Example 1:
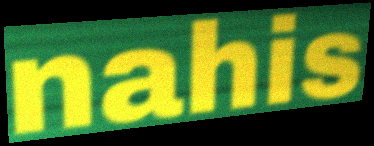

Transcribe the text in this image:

nahis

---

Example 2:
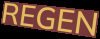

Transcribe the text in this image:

REGEN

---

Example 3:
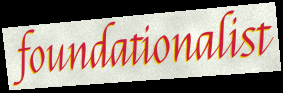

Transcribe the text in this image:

foundationalist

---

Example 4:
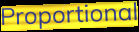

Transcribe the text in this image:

Proportional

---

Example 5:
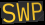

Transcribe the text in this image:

SWP